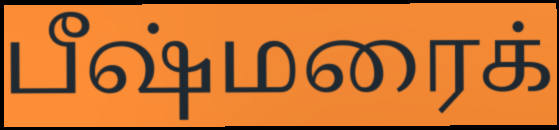
பீஷ்மரைக்